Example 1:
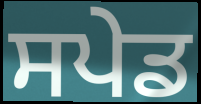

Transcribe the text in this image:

ਸਪੇਡ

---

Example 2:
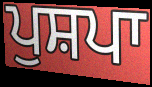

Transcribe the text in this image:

ਪੁਸ਼ਪਾ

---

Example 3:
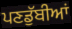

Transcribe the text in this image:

ਪਣਡੁੱਬੀਆਂ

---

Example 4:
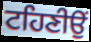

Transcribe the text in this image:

ਟਹਿਣੀਉਂ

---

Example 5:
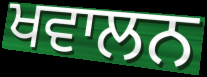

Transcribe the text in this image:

ਖਵਾਲਨ